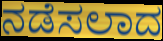
ನಡೆಸಲಾದ